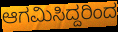
ಆಗಮಿಸಿದ್ದರಿಂದ